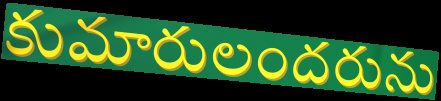
కుమారులందరును